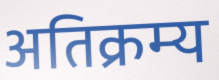
अतिक्रम्य